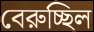
বেরুচ্ছিল